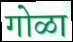
गोळा